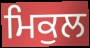
ਮਿਕੁਲ